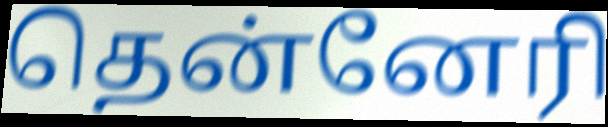
தென்னேரி